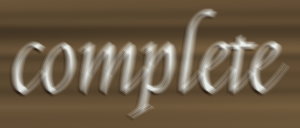
complete